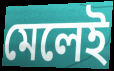
মেলেই